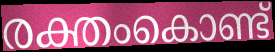
രക്തംകൊണ്ട്